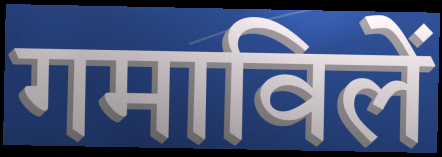
गमाविलें